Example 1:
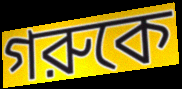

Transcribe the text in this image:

গরুকে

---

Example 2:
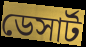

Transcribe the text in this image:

ডেসার্ট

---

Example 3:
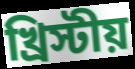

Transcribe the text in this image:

খ্রিস্টীয়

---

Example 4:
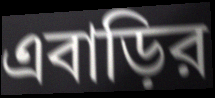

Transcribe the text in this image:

এবাড়ির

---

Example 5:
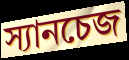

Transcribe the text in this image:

স্যানচেজ